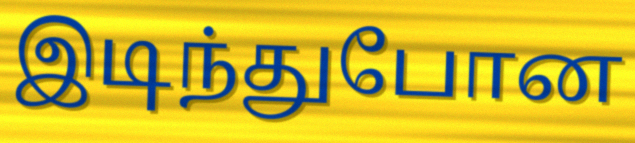
இடிந்துபோன